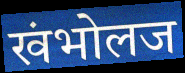
खंभोलज